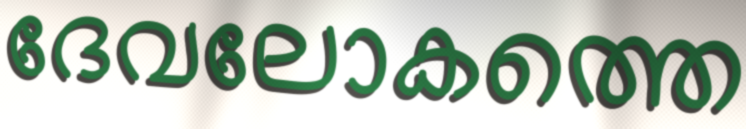
ദേവലോകത്തെ